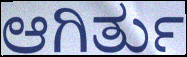
ಆಗಿರ್ತು